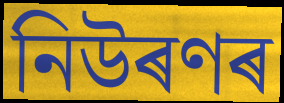
নিউৰণৰ